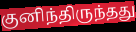
குனிந்திருந்தது